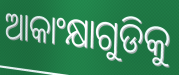
ଆକାଂକ୍ଷାଗୁଡିକୁ